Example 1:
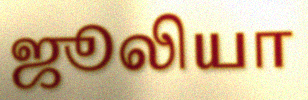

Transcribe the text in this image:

ஜூலியா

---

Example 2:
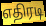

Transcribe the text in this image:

எதிரடி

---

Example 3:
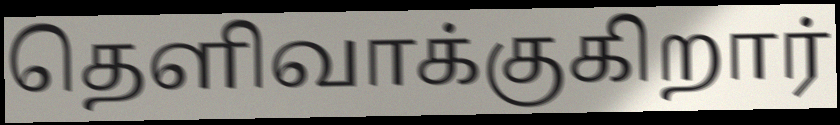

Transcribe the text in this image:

தெளிவாக்குகிறார்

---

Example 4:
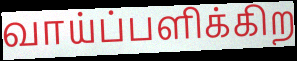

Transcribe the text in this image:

வாய்ப்பளிக்கிற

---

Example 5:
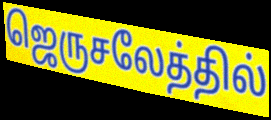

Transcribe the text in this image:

ஜெருசலேத்தில்